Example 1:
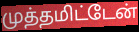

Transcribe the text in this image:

முத்தமிட்டேன்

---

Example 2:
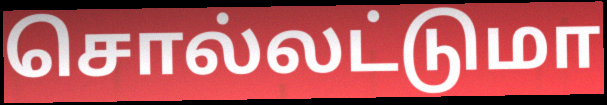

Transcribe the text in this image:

சொல்லட்டுமா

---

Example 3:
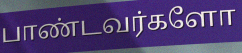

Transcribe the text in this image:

பாண்டவர்களோ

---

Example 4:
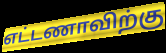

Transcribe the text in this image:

எட்டணாவிற்கு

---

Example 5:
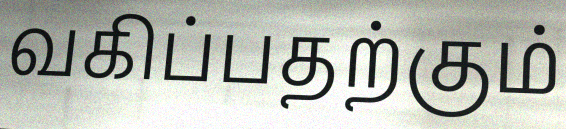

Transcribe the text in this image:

வகிப்பதற்கும்